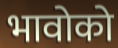
भावोको